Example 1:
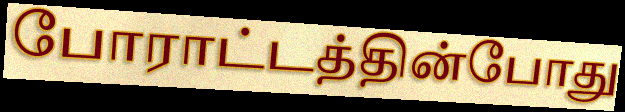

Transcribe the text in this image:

போராட்டத்தின்போது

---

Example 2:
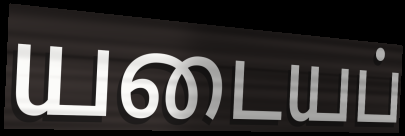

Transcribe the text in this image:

யடையப்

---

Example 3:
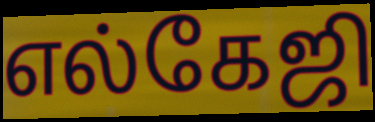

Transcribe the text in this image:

எல்கேஜி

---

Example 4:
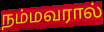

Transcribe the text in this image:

நம்மவரால்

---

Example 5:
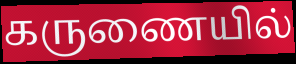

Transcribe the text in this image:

கருணையில்